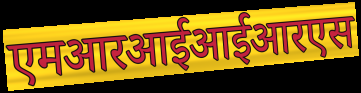
एमआरआईआईआरएस